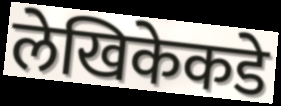
लेखिकेकडे